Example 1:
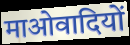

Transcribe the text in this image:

माओवादियों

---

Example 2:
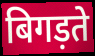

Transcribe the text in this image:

बिगड़ते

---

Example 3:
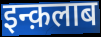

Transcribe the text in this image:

इन्क़लाब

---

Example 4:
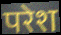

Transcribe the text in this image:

परेश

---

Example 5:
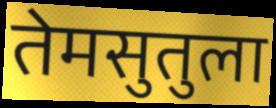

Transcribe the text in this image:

तेमसुतुला